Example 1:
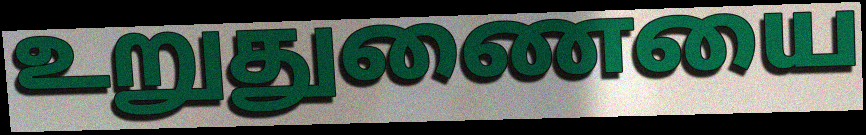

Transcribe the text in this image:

உறுதுணையை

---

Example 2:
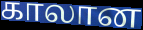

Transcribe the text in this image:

காலான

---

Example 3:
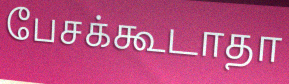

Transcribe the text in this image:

பேசக்கூடாதா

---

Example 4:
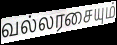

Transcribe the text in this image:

வல்லரசையும்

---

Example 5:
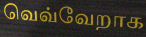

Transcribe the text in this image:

வெவ்வேறாக